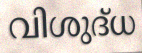
വിശുദ്‌ധ